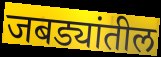
जबड्यांतील